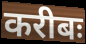
करीबः